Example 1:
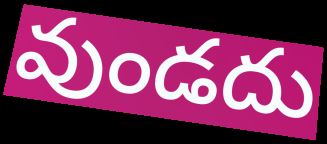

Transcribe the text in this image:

వుండదు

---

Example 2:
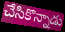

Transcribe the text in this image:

చేసికొన్నాడు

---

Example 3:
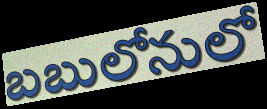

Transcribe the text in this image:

బబులోనులో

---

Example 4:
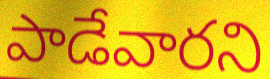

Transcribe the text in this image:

పాడేవారని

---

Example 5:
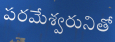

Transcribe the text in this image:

పరమేశ్వరునితో